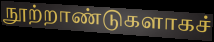
நூற்றாண்டுகளாகச்